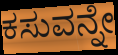
ಕಸುವನ್ನೇ